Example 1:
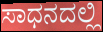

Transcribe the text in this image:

ಸಾಧನದಲ್ಲಿ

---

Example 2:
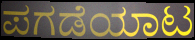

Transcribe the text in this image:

ಪಗಡೆಯಾಟ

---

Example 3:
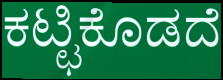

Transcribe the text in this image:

ಕಟ್ಟಿಕೊಡದೆ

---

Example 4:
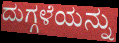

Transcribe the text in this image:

ದುಗ್ಗಳೆಯನ್ನು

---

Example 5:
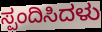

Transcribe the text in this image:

ಸ್ಪಂದಿಸಿದಳು